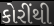
કોરીંથી